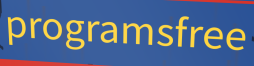
programsfree